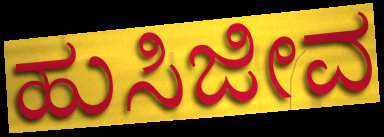
ಹುಸಿಜೀವ